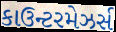
કાઉન્ટરમેઝર્સ